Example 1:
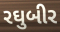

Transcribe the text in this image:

રઘુબીર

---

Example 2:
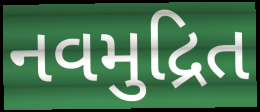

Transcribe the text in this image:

નવમુદ્રિત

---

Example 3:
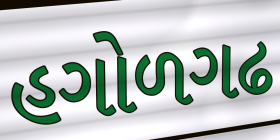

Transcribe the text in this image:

હગોળગઢ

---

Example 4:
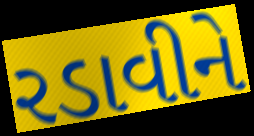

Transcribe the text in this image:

રડાવીને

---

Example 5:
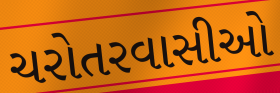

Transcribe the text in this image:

ચરોતરવાસીઓ